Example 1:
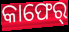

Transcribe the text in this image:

କାଫେର୍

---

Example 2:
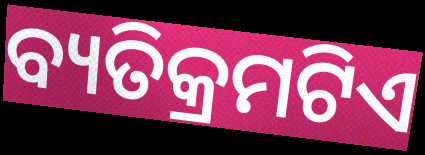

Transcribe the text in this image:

ବ୍ୟତିକ୍ରମଟିଏ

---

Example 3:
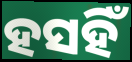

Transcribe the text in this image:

ହସହିଁ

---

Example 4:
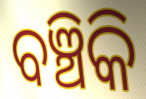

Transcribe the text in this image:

ବଞ୍ଚିକି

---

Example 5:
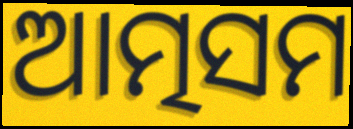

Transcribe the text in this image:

ଆତ୍ମସମ